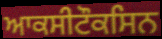
ਆਕਸੀਟੌਕਸਿਨ